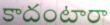
కాదంటారా